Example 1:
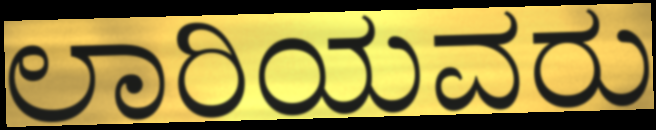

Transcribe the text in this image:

ಲಾರಿಯವರು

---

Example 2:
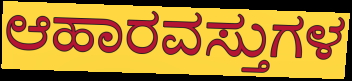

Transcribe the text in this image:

ಆಹಾರವಸ್ತುಗಳ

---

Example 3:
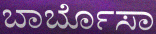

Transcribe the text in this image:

ಬಾರ್ಬೊಸಾ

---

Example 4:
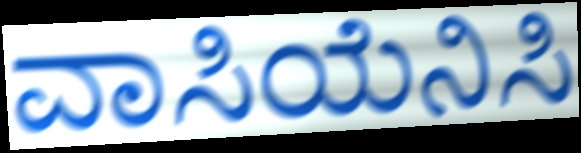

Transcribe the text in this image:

ವಾಸಿಯೆನಿಸಿ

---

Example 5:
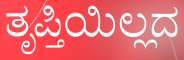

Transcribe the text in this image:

ತೃಪ್ತಿಯಿಲ್ಲದ